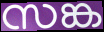
സങ്ക